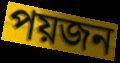
পয়জন